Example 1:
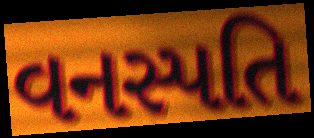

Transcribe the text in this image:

વનસ્પતિ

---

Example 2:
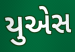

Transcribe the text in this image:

યુએસ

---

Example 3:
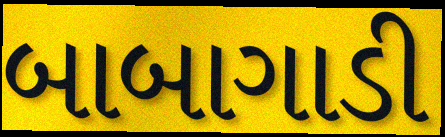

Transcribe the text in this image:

બાબાગાડી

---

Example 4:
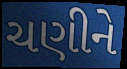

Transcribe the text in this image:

ચણીને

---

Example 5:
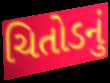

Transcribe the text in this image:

ચિતોડનું